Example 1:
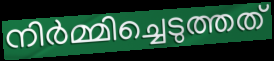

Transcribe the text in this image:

നിർമ്മിച്ചെടുത്തത്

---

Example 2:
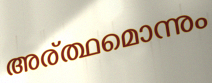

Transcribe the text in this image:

അര്ത്ഥമൊന്നും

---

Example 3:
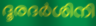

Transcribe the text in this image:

ദൂരദർശിനി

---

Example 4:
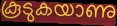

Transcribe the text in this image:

കൂടുകയാണു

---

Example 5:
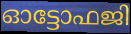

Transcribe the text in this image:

ഓട്ടോഫജി